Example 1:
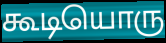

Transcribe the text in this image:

கூடியொரு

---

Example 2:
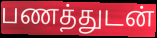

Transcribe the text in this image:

பணத்துடன்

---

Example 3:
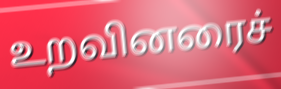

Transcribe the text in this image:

உறவினரைச்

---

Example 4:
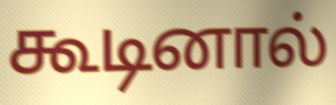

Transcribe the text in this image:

கூடினால்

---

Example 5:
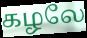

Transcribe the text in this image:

கழலே